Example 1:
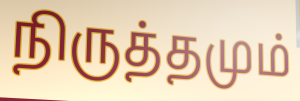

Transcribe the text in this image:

நிருத்தமும்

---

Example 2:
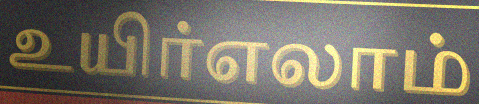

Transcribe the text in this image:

உயிர்எலாம்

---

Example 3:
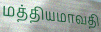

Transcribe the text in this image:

மத்தியமாவதி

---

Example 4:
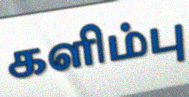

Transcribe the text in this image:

களிம்பு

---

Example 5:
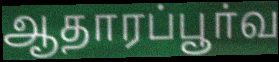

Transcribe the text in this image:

ஆதாரப்பூர்வ